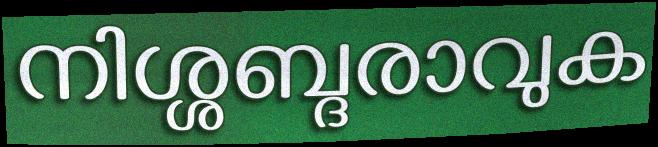
നിശ്ശബ്ദരാവുക